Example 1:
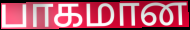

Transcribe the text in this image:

பாகமான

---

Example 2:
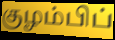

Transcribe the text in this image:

குழம்பிப்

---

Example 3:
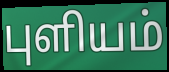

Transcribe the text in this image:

புளியம்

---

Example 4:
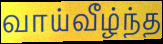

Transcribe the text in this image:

வாய்வீழ்ந்த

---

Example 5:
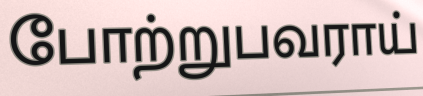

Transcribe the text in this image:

போற்றுபவராய்